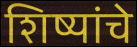
शिष्यांचे